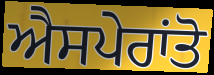
ਐਸਪੇਰਾਂਤੋ